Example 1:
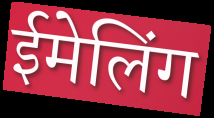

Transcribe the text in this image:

ईमेलिंग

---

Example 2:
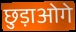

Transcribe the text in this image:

छुड़ाओगे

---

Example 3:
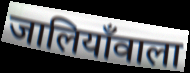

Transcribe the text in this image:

जालियाँवाला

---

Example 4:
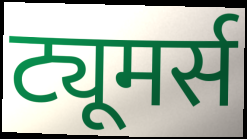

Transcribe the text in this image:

ट्यूमर्स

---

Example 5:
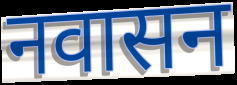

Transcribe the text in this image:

नवासन